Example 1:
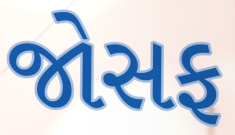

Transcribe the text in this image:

જોસફ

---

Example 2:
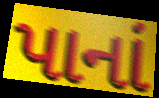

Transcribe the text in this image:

પાનાં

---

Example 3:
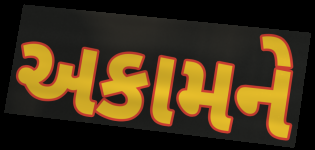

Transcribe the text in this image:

અકામને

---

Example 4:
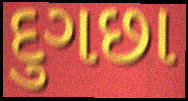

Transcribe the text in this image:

દુગછા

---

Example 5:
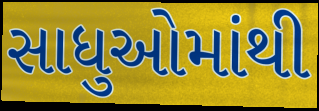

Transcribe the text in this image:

સાધુઓમાંથી